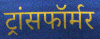
ट्रांसफॉर्मर